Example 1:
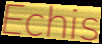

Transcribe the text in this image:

Echis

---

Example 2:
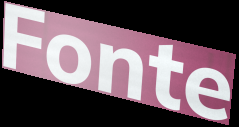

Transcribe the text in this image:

Fonte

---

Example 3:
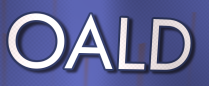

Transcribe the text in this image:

OALD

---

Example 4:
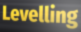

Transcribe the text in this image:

Levelling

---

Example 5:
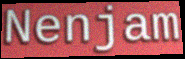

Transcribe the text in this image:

Nenjam